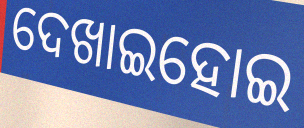
ଦେଖାଇହୋଇ